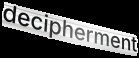
decipherment